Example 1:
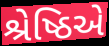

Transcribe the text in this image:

શ્રેષ્ઠિએ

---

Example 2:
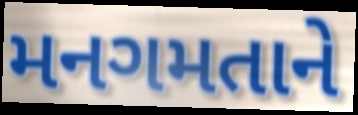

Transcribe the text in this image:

મનગમતાને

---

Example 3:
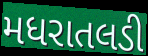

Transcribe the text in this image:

મધરાતલડી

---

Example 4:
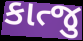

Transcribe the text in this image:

કાત્જુ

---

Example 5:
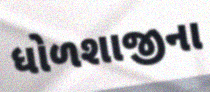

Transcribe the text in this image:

ધોળશાજીના